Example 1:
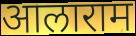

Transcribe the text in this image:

आलाराम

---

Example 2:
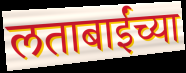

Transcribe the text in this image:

लताबाईंच्या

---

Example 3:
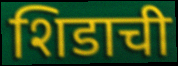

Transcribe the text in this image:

शिडाची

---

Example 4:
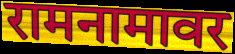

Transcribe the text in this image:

रामनामावर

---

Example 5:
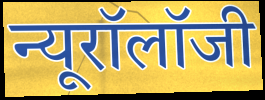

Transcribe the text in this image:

न्यूरॉलॉजी